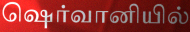
ஷெர்வானியில்